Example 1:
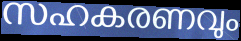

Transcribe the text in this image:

സഹകരണവും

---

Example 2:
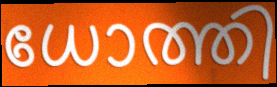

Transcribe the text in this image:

ധോത്തി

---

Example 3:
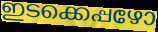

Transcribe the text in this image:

ഇടക്കെപ്പഴോ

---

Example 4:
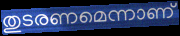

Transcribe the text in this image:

തുടരണമെന്നാണ്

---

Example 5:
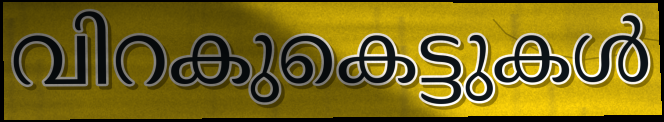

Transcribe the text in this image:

വിറകുകെട്ടുകൾ